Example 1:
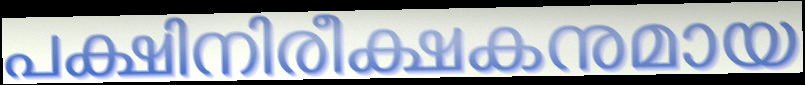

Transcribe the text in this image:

പക്ഷിനിരീക്ഷകനുമായ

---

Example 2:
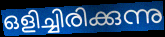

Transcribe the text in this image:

ഒളിച്ചിരിക്കുന്നു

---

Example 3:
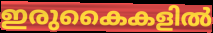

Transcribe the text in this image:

ഇരുകൈകളിൽ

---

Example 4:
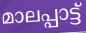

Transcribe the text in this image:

മാലപ്പാട്ട്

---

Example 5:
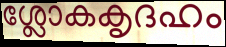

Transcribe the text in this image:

ശ്ലോകകൃദഹം